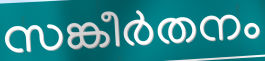
സങ്കീർതനം